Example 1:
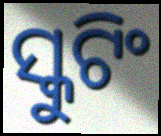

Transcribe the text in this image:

ସ୍କୁଟିଂ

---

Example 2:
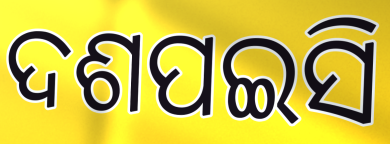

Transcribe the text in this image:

ଦଶପଇସି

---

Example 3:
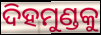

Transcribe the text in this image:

ଦିହମୁଣ୍ଡକୁ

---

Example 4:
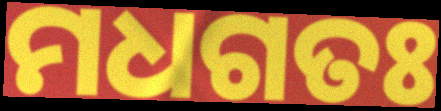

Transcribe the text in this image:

ମଧଗତଃ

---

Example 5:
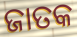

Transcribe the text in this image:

ଜାତକ